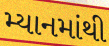
મ્યાનમાંથી